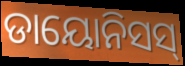
ଡାୟୋନିସସ୍